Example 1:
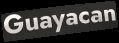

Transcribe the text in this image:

Guayacan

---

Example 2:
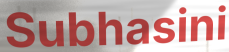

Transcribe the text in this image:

Subhasini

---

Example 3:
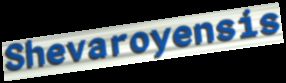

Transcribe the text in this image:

Shevaroyensis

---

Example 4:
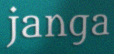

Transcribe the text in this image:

janga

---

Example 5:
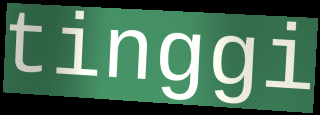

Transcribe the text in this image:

tinggi